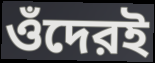
ওঁদেরই